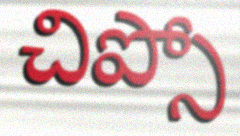
చిప్సో